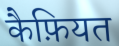
कैफ़ियत